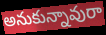
అనుకున్నావురా